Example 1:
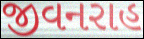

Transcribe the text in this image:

જીવનરાહ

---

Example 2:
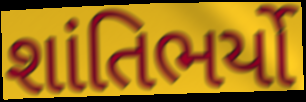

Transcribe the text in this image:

શાંતિભર્યો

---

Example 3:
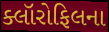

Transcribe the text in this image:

ક્લૉરોફિલના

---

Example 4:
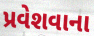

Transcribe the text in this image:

પ્રવેશવાના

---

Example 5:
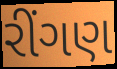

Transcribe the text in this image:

રીંગણ